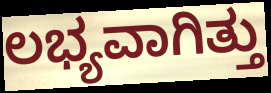
ಲಭ್ಯವಾಗಿತ್ತು